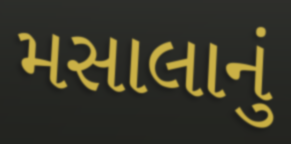
મસાલાનું